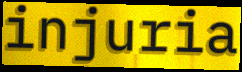
injuria